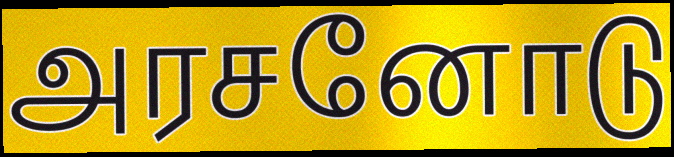
அரசனோடு